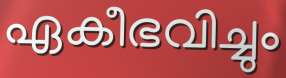
ഏകീഭവിച്ചും